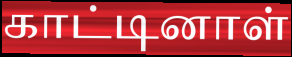
காட்டினாள்